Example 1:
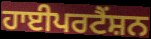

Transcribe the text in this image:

ਹਾਈਪਰਟੈਂਸ਼ਨ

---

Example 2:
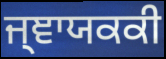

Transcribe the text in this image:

ਜ੍ਞਾਯਕਕੀ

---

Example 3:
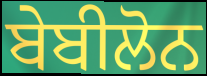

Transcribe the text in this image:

ਬੇਬੀਲੋਨ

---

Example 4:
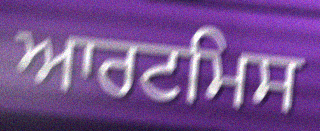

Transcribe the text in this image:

ਆਰਟਮਿਸ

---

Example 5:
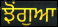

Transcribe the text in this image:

ਝੋਂਗੁਆ